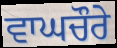
ਵਾਘਚੌਰੇ